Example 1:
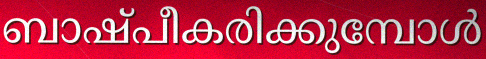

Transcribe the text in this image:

ബാഷ്പീകരിക്കുമ്പോൾ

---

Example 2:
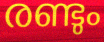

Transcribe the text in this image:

രണ്ടും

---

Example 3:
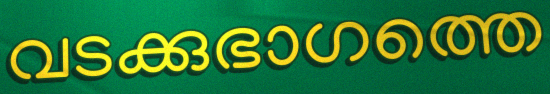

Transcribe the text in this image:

വടക്കുഭാഗത്തെ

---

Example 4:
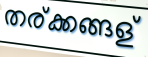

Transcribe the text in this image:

തര്ക്കങ്ങള്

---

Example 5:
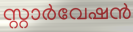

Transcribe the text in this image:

സ്റ്റാർവേഷൻ